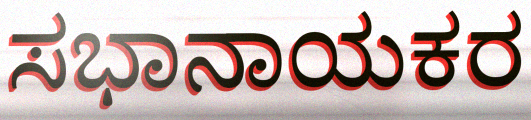
ಸಭಾನಾಯಕರ